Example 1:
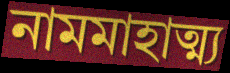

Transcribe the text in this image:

নামমাহাত্ম্য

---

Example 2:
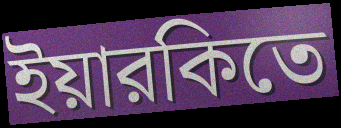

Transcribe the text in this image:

ইয়ারকিতে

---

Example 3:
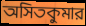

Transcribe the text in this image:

অসিতকুমার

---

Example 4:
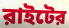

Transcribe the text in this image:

রাইটের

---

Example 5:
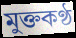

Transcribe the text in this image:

মুক্তকণ্ঠ